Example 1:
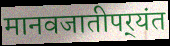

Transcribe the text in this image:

मानवजातीपर्यंत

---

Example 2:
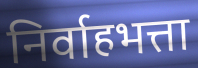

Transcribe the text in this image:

निर्वाहभत्ता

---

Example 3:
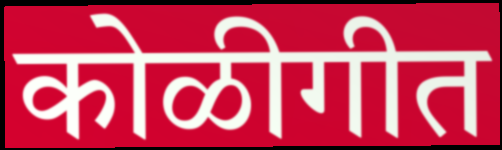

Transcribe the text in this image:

कोळीगीत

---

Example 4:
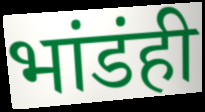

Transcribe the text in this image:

भांडंही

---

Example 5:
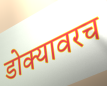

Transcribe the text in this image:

डोक्यावरच